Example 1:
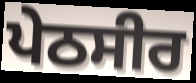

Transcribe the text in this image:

ਪੇਠਸੀਰ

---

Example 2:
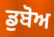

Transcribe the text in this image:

ਡੁਬੋਅ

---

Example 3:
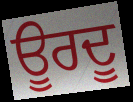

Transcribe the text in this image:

ਊਰਦੂ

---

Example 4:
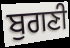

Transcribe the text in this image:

ਬੁਗਣੀ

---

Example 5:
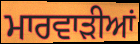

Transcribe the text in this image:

ਮਾਰਵਾੜੀਆਂ